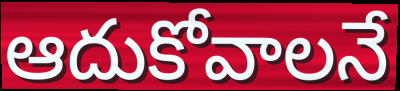
ఆదుకోవాలనే